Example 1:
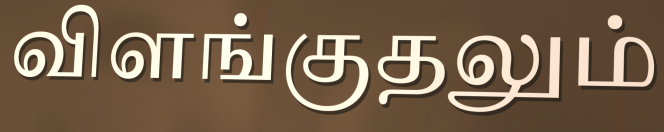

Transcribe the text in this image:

விளங்குதலும்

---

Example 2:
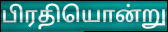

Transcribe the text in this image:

பிரதியொன்று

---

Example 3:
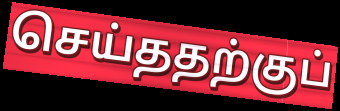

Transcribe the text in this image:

செய்ததற்குப்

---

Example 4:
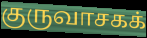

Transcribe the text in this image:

குருவாசகக்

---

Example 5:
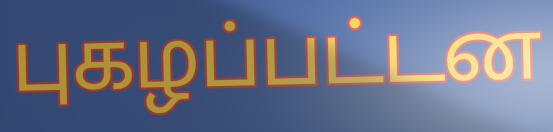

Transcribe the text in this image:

புகழப்பட்டன